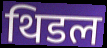
थिडल